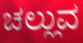
ಚಲ್ಲುವ